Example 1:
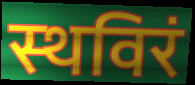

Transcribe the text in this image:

स्थविरं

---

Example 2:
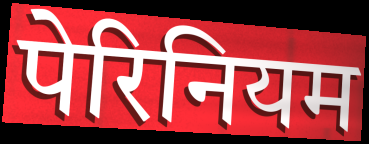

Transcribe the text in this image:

पेरिनियम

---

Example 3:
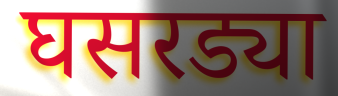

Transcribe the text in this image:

घसरड्या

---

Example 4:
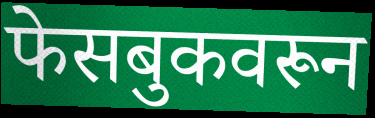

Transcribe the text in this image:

फेसबुकवरून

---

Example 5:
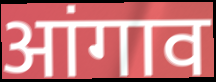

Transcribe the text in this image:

आंगाव